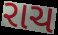
રાચ